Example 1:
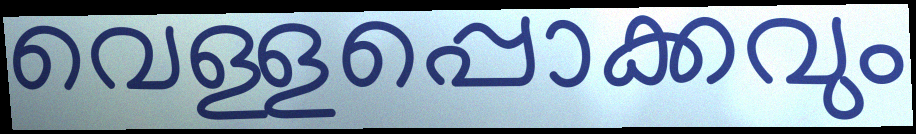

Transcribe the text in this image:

വെള്ളപ്പൊക്കവും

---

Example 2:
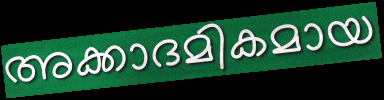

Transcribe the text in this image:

അക്കാദമികമായ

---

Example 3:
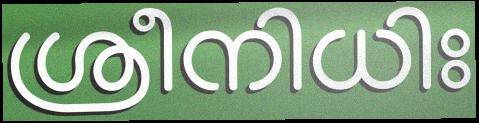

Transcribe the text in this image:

ശ്രീനിധിഃ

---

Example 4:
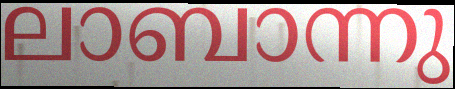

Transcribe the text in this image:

ലാബാന്നു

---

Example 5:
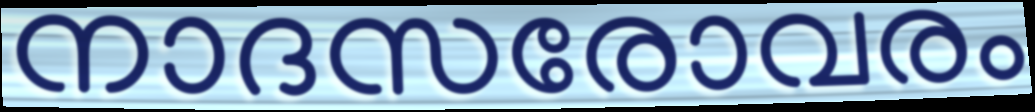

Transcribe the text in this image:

നാദസരോവരം